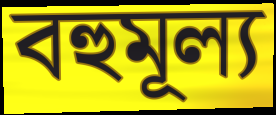
বহুমূল্য